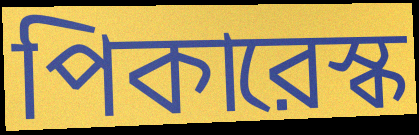
পিকারেস্ক